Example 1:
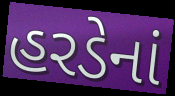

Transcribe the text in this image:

હરડેનાં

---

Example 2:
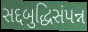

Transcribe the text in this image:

સદ્દબુદ્ધિસંપન્ન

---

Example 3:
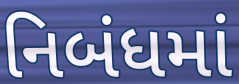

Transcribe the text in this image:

નિબંધમાં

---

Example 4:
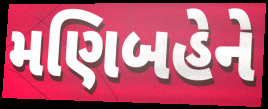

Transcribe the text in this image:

મણિબહેને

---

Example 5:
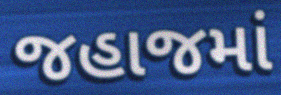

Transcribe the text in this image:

જહાજમાં